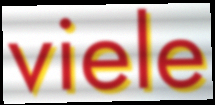
viele